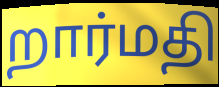
றார்மதி